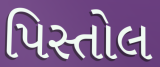
પિસ્તોલ